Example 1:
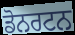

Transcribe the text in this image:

ਡੋਨਰਟਨ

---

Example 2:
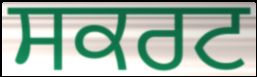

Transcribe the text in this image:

ਸਕਰਟ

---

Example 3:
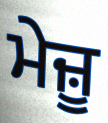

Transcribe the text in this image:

ਮੇਜ਼ੂ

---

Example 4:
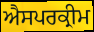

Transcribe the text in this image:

ਐਸਪਰਕ੍ਰੀਮ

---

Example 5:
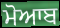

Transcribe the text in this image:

ਮੋਆਬ